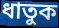
ধাতুক